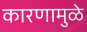
कारणामुळे